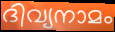
ദിവ്യനാമം